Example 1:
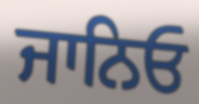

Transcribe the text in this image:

ਜਾਨਿਓ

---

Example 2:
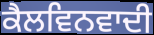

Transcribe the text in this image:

ਕੈਲਵਿਨਵਾਦੀ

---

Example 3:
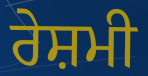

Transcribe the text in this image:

ਰੇਸ਼ਮੀ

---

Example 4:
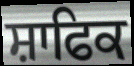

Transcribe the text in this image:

ਸ਼ਾਫਿਕ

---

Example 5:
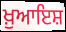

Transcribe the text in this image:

ਖ਼ੁਆਇਸ਼